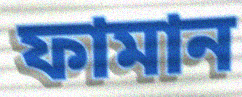
ফামান